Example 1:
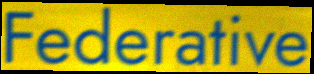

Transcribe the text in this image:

Federative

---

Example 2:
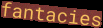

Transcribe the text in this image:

fantacies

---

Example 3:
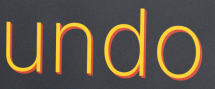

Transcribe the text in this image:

undo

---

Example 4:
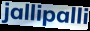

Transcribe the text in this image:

jallipalli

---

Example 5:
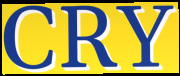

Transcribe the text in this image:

CRY